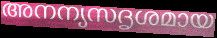
അനന്യസദൃശമായ